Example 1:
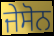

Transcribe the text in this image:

ਜੇਸੋਨ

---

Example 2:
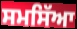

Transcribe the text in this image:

ਸਮਸਿੱਆ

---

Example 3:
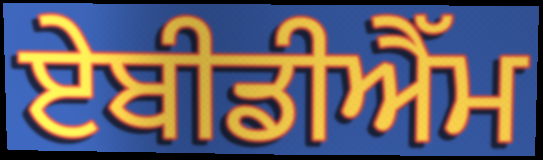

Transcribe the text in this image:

ਏਬੀਡੀਐੱਮ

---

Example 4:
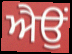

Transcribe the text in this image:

ਐਉਂ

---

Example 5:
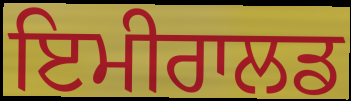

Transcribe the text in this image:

ਇਮੀਰਾਲਡ